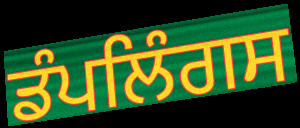
ਡੰਪਲਿੰਗਸ